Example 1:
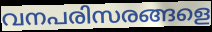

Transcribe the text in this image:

വനപരിസരങ്ങളെ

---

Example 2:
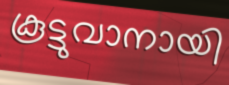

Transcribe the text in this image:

കൂട്ടുവാനായി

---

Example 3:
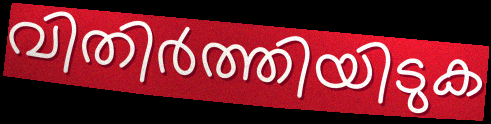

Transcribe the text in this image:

വിതിർത്തിയിടുക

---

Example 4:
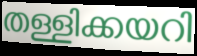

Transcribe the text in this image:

തള്ളിക്കയറി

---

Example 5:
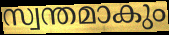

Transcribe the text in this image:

സ്വന്തമാകും